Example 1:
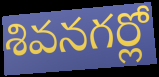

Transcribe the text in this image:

శివనగర్లో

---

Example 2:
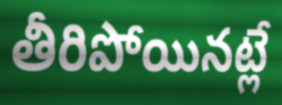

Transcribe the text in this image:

తీరిపోయినట్లే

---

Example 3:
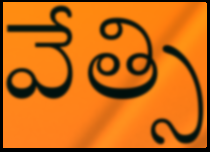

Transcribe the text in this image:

వేత్సి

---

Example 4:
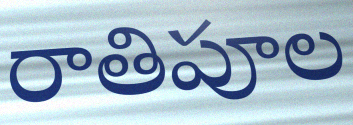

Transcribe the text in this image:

రాతిపూల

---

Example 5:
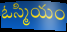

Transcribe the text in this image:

ఓస్మియం